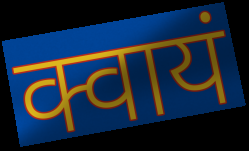
क्वायं